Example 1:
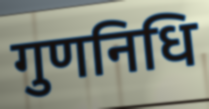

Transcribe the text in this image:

गुणनिधि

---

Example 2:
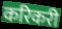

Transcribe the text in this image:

करिकरी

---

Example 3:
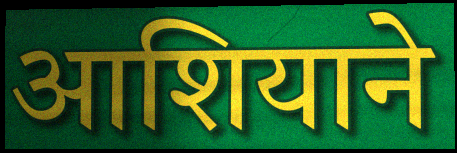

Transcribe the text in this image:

आशियाने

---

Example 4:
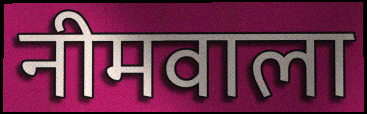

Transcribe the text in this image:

नीमवाला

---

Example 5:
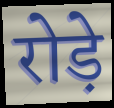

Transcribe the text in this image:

रोड़े